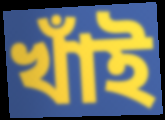
খাঁই